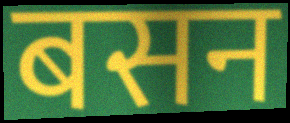
बसन